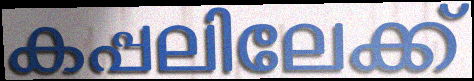
കപ്പലിലേക്ക്